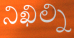
నిఖిల్ని